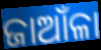
ଜାଆଁଳା